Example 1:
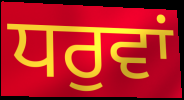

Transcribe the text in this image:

ਧਰੁਵਾਂ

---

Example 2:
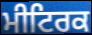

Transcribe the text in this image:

ਮੀਟਿਰਕ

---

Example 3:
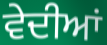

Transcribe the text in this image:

ਵੇਦੀਆਂ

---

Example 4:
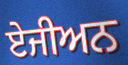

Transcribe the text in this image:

ਏਜੀਅਨ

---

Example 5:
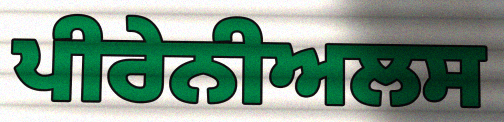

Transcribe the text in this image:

ਪੀਰੇਨੀਅਲਸ